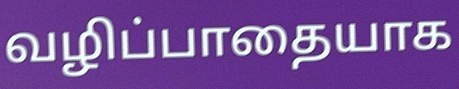
வழிப்பாதையாக